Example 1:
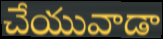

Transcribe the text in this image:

చేయువాడా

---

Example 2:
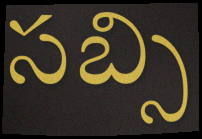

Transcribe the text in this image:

సబ్సి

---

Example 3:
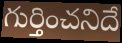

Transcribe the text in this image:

గుర్తించనిదే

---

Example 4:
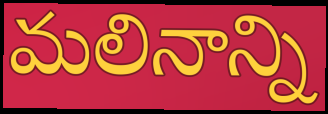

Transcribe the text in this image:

మలినాన్ని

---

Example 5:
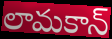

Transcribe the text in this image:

లామకాన్